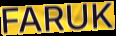
FARUK